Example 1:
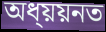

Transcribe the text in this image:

অধ্য়য়নত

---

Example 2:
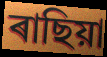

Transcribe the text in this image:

ৰাছিয়া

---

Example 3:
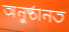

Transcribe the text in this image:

অনুষ্ঠানত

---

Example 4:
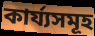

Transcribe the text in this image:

কাৰ্য্যসমূহ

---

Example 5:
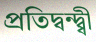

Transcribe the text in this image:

প্ৰতিদ্বন্দ্ব্বী